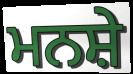
ਮਨਸ਼ੇ